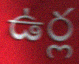
ఉర్ల